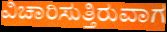
ವಿಚಾರಿಸುತ್ತಿರುವಾಗ